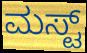
ಮಸ್ಟ್